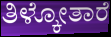
ತಿಳ್ಕೋತಾರೆ